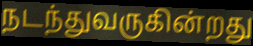
நடந்துவருகின்றது